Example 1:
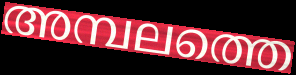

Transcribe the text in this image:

അമ്പലത്തെ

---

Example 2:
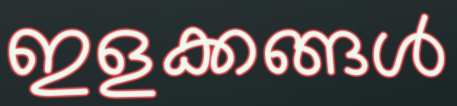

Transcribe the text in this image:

ഇളക്കങ്ങൾ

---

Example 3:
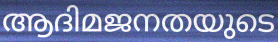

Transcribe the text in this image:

ആദിമജനതയുടെ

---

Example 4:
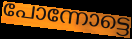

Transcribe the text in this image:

പോന്നോട്ടെ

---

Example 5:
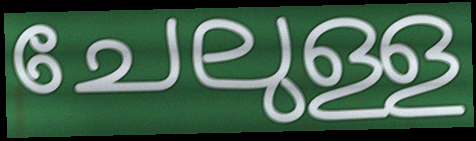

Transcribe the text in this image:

ചേലുള്ള